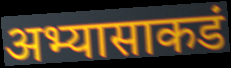
अभ्यासाकडं